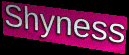
Shyness